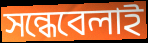
সন্ধেবেলাই